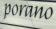
porano